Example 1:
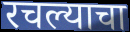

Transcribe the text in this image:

रचल्याचा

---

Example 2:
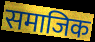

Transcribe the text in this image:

समाजिक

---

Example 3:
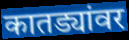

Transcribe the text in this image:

कातड्यांवर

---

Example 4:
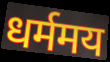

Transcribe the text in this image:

धर्ममय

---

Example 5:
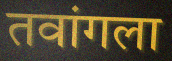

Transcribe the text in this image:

तवांगला